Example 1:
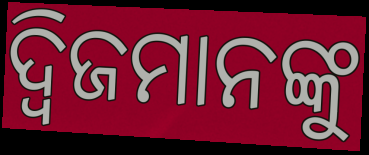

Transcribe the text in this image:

ଦ୍ଵିଜମାନଙ୍କୁ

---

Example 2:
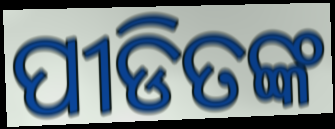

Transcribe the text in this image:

ପୀଡିତଙ୍କ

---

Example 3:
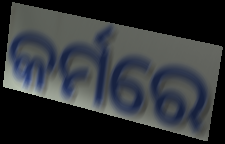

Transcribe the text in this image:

କର୍ମରେ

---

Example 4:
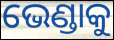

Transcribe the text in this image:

ଭେଣ୍ଡାକୁ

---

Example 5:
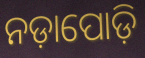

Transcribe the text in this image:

ନଡ଼ାପୋଡ଼ି